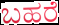
ಬಹರೆ